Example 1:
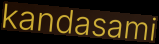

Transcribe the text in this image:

kandasami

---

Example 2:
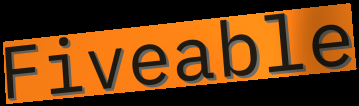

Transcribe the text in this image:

Fiveable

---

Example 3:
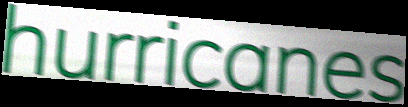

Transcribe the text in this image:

hurricanes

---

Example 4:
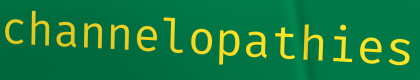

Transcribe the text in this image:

channelopathies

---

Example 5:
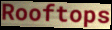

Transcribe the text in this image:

Rooftops